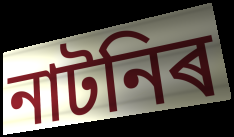
নাটনিৰ